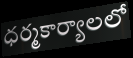
ధర్మకార్యాలలో